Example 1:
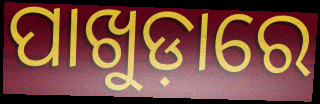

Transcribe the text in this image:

ପାଖୁଡ଼ାରେ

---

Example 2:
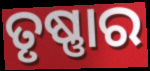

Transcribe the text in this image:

ତୃଷ୍ଣାର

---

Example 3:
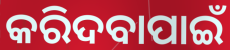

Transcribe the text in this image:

କରିଦବାପାଇଁ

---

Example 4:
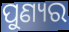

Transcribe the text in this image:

ପୁଣ୍ୟର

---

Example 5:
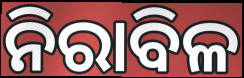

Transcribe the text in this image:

ନିରାବିଳ